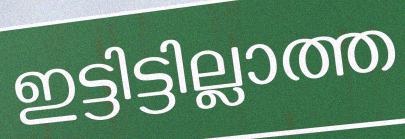
ഇട്ടിട്ടില്ലാത്ത